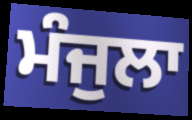
ਮੰਜੁਲਾ